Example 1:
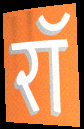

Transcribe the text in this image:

रॉ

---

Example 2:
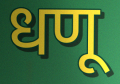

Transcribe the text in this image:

धणू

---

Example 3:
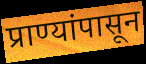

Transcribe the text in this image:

प्राण्यांपासून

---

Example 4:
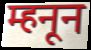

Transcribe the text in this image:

म्हनून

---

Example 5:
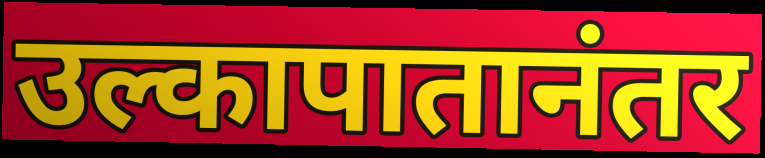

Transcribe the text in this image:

उल्कापातानंतर